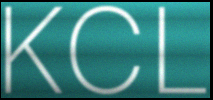
KCL